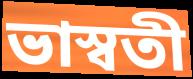
ভাস্বতী